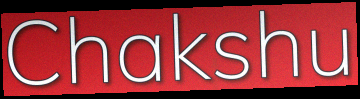
Chakshu